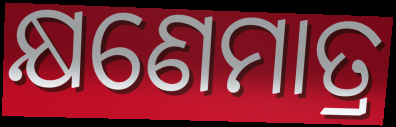
କ୍ଷଣେମାତ୍ର